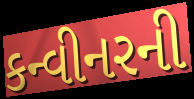
કન્વીનરની